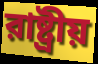
রাষ্ট্রীয়